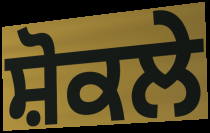
ਸ਼ੋਕਲੇ